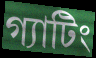
গ্যাটিং